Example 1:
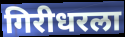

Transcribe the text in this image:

गिरीधरला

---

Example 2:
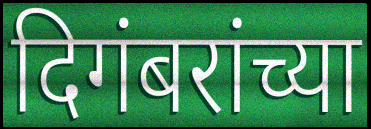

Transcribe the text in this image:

दिगंबरांच्या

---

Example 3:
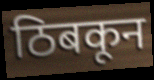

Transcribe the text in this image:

ठिबकून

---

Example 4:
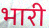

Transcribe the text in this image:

भारी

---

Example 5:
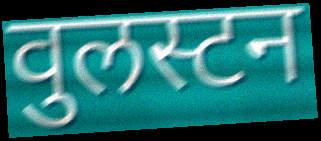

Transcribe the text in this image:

वुलस्टन